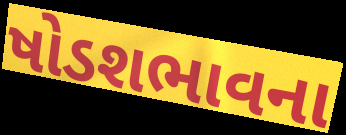
ષોડશભાવના